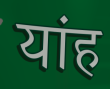
यांह